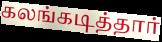
கலங்கடித்தார்